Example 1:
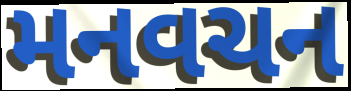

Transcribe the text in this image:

મનવચન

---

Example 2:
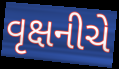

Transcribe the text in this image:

વૃક્ષનીચે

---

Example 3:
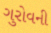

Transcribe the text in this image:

ગુરોવની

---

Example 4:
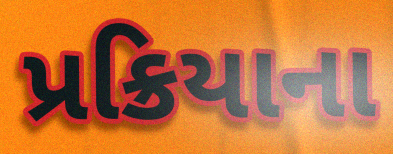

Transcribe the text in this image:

પ્રક્રિયાના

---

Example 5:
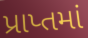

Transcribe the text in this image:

પ્રાપ્તમાં